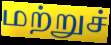
மற்றுச்